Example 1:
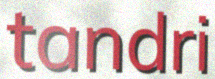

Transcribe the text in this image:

tandri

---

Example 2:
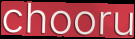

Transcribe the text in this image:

chooru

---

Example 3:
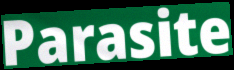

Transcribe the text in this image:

Parasite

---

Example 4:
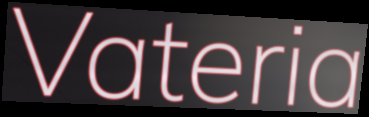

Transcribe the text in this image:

Vateria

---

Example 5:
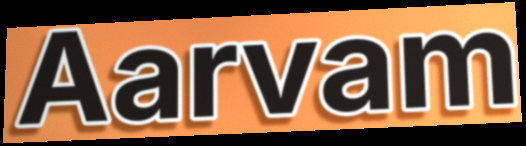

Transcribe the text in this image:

Aarvam